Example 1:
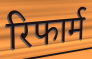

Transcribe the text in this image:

रिफार्म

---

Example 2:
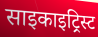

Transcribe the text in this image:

साइकाइट्रिस्ट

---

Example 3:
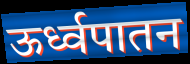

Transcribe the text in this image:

ऊर्ध्वपातन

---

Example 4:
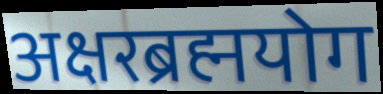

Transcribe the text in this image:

अक्षरब्रह्मयोग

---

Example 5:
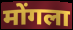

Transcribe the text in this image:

मोंगला